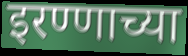
इरण्णाच्या